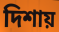
দিশায়